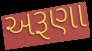
અરૂણા